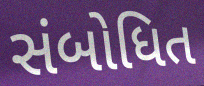
સંબોધિત